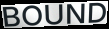
BOUND